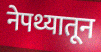
नेपथ्यातून